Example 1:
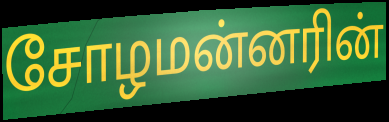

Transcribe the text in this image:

சோழமன்னரின்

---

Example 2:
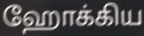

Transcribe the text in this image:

ஹோக்கிய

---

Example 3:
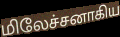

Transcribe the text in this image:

மிலேச்சனாகிய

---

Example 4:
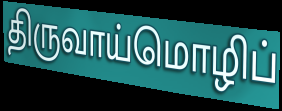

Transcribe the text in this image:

திருவாய்மொழிப்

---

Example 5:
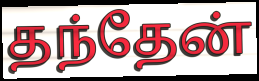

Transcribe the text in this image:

தந்தேன்